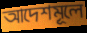
আদেশমূলে